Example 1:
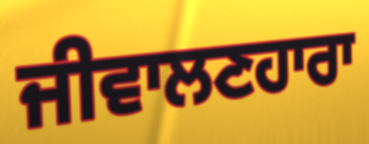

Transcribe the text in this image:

ਜੀਵਾਲਣਹਾਰਾ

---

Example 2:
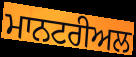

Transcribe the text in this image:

ਮਾਨਟਰੀਅਲ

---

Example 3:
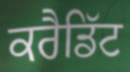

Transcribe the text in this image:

ਕਰੈਡਿੱਟ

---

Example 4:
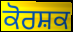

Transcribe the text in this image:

ਕੋਰਸ਼ਕ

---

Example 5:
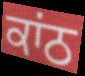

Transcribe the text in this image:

ਕਾਂਠ